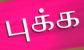
புக்க